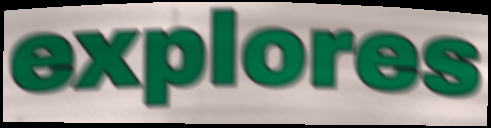
explores